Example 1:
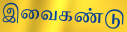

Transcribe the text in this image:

இவைகண்டு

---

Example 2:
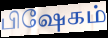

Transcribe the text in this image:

பிஷேகம்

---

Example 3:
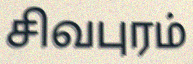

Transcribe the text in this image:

சிவபுரம்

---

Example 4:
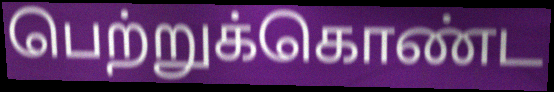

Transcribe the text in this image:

பெற்றுக்கொண்ட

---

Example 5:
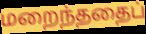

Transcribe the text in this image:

மறைந்ததைப்